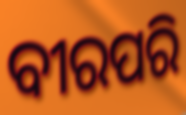
ବୀରପରି